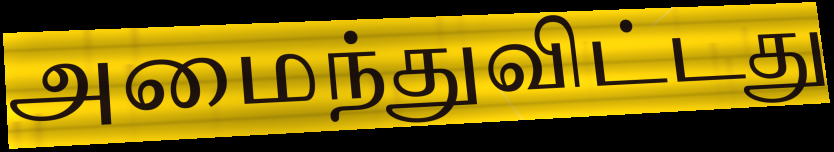
அமைந்துவிட்டது